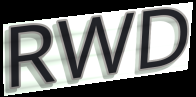
RWD